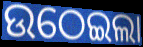
ଉଠେଇଲା